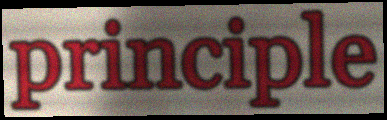
principle